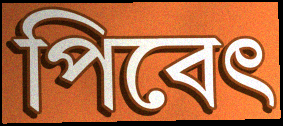
পিবেৎ